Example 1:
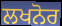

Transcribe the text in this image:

ਲਖਨੋਰ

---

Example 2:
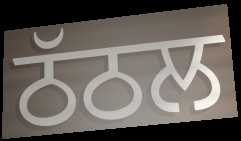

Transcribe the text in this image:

ਠੱਠਲ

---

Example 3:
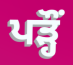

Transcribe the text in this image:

ਪੜ੍ਹੌਂ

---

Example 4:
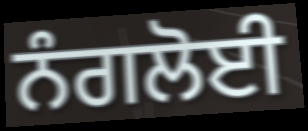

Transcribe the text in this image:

ਨੰਗਲੋਈ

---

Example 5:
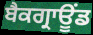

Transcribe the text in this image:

ਬੈਕਗ੍ਰਾਊਂਡ